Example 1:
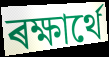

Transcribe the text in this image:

ৰক্ষাৰ্থে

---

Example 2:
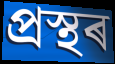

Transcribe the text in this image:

প্ৰস্থৰ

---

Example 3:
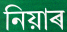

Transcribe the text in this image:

নিয়াৰ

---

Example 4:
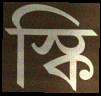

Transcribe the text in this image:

স্কি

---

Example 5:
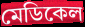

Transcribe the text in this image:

মেডিকেল